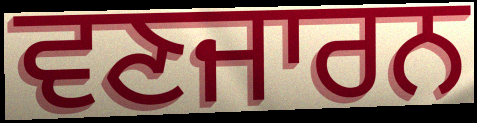
ਵਣਜਾਰਨ